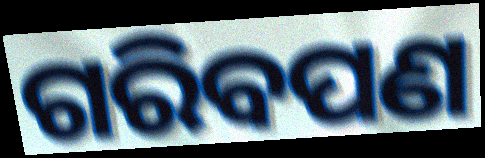
ଗରିବପଣ